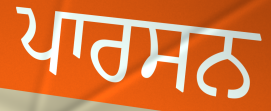
ਪਾਰਸਨ